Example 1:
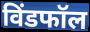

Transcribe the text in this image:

विंडफॉल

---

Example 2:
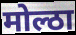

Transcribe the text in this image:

मोल्ठा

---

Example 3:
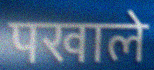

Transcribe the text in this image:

पखाले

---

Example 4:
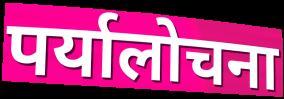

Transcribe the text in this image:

पर्यालोचना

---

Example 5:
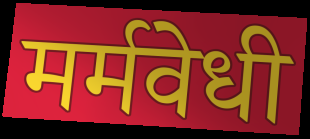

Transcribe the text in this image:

मर्मवेधी